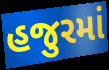
હજુરમાં